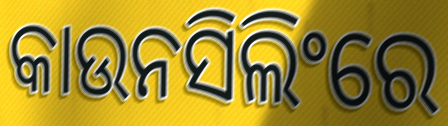
କାଉନସିଲିଂରେ